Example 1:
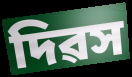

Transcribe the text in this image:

দিৱস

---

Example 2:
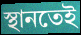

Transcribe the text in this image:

স্থানতেই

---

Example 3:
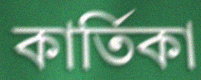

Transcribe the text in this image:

কাৰ্তিকা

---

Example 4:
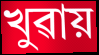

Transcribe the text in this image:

খুৱায়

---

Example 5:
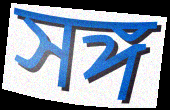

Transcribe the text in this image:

সঙ্গ